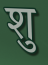
शु